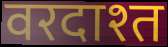
वरदाश्त